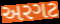
અરગટ